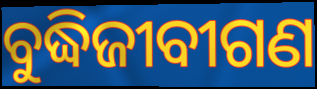
ବୁଦ୍ଧିଜୀବୀଗଣ